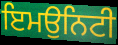
ਇਮਉਨਿਟੀ